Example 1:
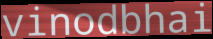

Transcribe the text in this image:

vinodbhai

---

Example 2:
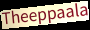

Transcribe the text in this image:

Theeppaala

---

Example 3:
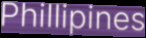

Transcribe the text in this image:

Phillipines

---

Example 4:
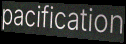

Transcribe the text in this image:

pacification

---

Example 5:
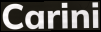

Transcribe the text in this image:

Carini